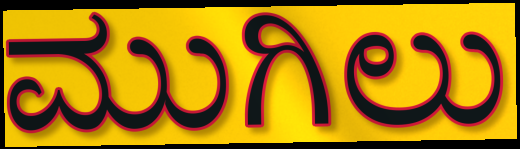
ಮುಗಿಲು